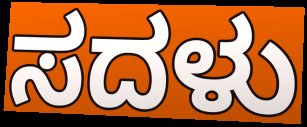
ಸದಳು